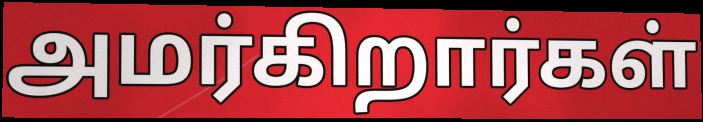
அமர்கிறார்கள்